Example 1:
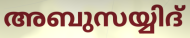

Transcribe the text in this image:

അബുസയ്യിദ്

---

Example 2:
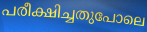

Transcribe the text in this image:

പരീക്ഷിച്ചതുപോലെ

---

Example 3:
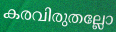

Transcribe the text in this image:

കരവിരുതല്ലോ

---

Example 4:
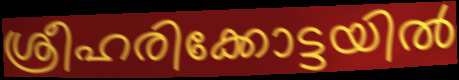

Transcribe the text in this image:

ശ്രീഹരിക്കോട്ടയിൽ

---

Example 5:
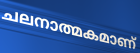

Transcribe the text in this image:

ചലനാത്മകമാണ്